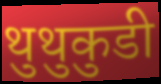
थुथुकुडी